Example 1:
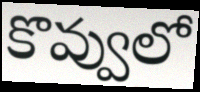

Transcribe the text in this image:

కొవ్వులో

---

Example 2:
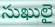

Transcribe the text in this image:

సుఖులై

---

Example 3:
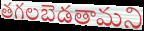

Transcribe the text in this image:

తగలబెడతామని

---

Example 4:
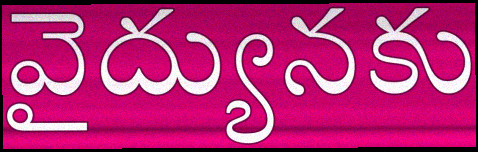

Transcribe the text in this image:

వైద్యునకు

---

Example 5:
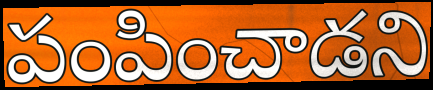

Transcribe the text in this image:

పంపించాడని